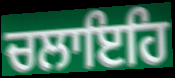
ਚਲਾਇਹਿ